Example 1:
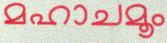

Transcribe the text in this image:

മഹാചമൂം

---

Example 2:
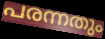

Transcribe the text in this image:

പരന്നതും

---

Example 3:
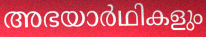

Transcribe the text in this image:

അഭയാർഥികളും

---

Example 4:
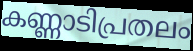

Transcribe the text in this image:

കണ്ണാടിപ്രതലം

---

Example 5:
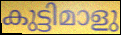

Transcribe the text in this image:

കുട്ടിമാളു